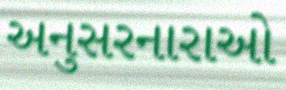
અનુસરનારાઓ